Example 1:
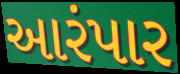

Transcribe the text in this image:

આરંપાર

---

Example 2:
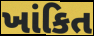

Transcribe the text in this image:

ખાંકિત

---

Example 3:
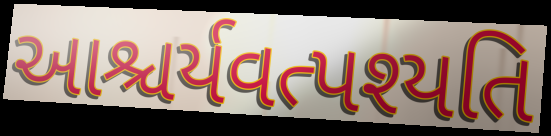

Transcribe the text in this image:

આશ્ચર્યવત્પશ્યતિ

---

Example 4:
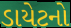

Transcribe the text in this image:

ડાયેટનો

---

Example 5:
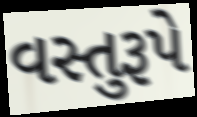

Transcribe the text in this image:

વસ્તુરૂપે